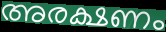
അരക്ഷണം